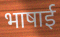
भाषाई